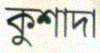
কুশাদা